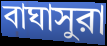
বাঘাসুরা